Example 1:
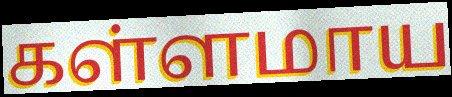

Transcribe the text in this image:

கள்ளமாய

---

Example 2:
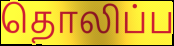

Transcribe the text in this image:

தொலிப்ப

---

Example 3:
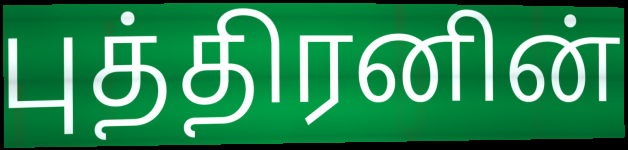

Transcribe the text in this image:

புத்திரனின்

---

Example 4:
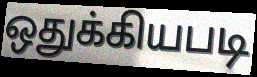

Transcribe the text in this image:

ஒதுக்கியபடி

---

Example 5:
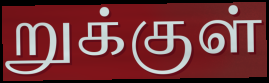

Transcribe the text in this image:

றுக்குள்